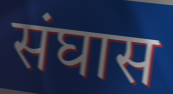
संघास